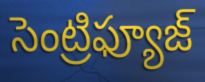
సెంట్రిఫ్యూజ్